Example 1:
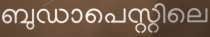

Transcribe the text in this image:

ബുഡാപെസ്റ്റിലെ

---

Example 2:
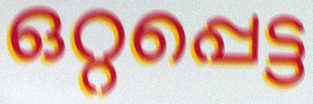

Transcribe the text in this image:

ഒറ്റപ്പെട്ട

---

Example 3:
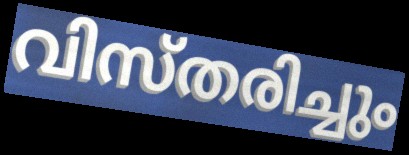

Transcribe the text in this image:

വിസ്തരിച്ചും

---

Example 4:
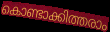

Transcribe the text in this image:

കൊണ്ടാക്കിത്തരാം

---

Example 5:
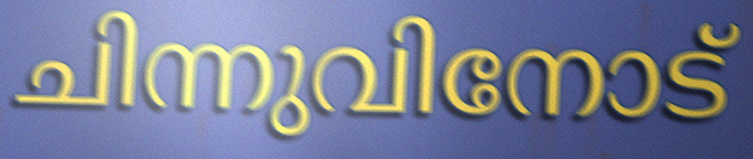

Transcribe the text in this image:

ചിന്നുവിനോട്